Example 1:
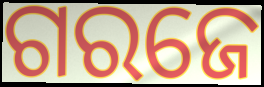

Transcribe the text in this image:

ଗରଜେ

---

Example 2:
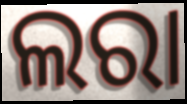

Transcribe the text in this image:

ଲରା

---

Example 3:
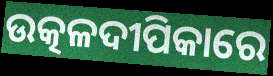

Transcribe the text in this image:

ଉତ୍କଳଦୀପିକାରେ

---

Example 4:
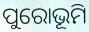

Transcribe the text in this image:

ପୁରୋଭୂମି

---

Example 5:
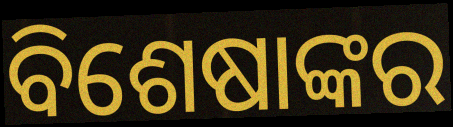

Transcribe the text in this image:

ବିଶେଷାଙ୍କର